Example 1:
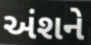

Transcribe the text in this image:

અંશને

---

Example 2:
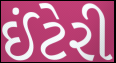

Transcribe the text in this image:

ઈંટેરી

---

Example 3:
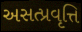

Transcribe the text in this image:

અસત્પ્રવૃત્તિ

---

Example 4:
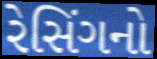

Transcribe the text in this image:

રેસિંગનો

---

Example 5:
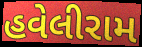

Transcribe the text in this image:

હવેલીરામ